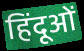
हिंदूओं